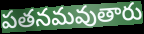
పతనమవుతారు